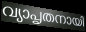
വ്യാപൃതനായി